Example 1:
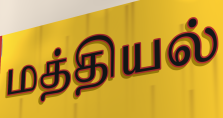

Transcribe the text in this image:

மத்தியல்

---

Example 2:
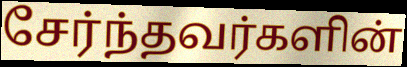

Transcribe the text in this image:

சேர்ந்தவர்களின்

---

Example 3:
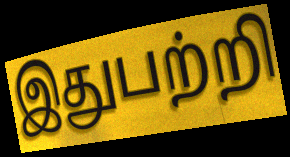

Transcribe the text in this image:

இதுபற்றி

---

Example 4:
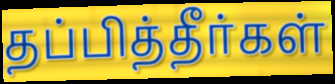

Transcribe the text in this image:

தப்பித்தீர்கள்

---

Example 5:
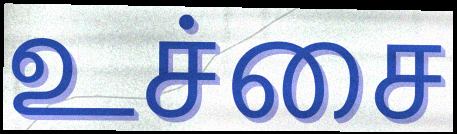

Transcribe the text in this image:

உச்சை